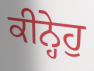
ਕੀਨ੍ਹੇਹੁ